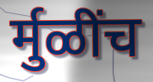
र्मुळींच